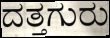
ದತ್ತಗುರು